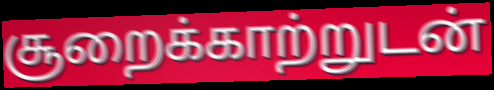
சூறைக்காற்றுடன்